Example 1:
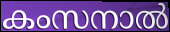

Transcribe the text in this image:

കംസനാൽ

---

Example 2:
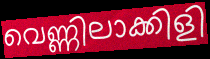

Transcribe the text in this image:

വെണ്ണിലാക്കിളി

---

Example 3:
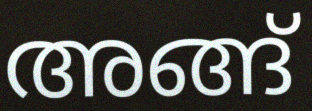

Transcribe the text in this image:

അങ്ങ്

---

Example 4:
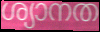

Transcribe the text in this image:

ശ്യാനത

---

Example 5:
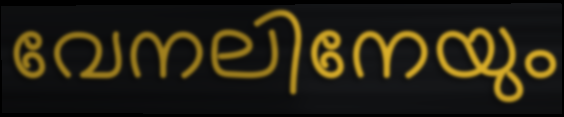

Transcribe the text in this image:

വേനലിനേയും